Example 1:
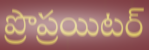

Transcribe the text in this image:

ప్రొప్రయిటర్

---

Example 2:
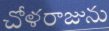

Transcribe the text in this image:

చోళరాజును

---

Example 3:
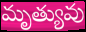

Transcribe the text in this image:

మృత్యువు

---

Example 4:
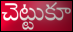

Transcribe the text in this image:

చెట్టుకూ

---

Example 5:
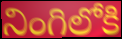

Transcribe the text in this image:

నింగిలోకి